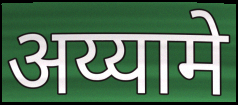
अय्यामे